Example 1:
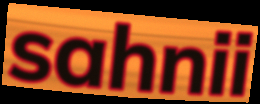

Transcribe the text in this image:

sahnii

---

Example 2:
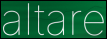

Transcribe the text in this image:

altare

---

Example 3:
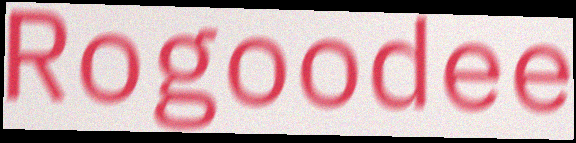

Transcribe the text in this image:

Rogoodee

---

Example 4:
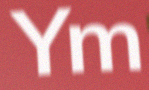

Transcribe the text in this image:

Ym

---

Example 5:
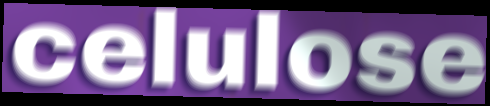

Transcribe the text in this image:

celulose